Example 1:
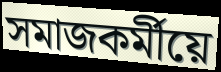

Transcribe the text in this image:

সমাজকৰ্মীয়ে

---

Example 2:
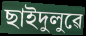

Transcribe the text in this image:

ছাইদুলুৱে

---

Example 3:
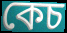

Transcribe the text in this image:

কেচ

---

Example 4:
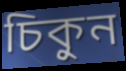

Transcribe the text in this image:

চিকুন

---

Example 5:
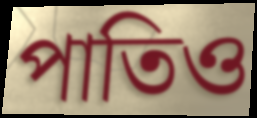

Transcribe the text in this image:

পাতিও